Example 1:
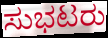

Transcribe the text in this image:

ಸುಭಟರು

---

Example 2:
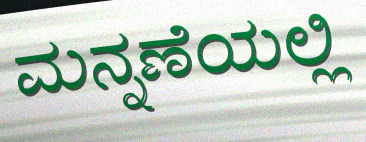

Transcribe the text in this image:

ಮನ್ನಣೆಯಲ್ಲಿ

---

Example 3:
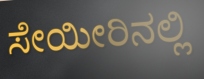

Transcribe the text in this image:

ಸೇಯೀರಿನಲ್ಲಿ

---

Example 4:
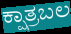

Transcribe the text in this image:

ಕ್ಷಾತ್ರಬಲ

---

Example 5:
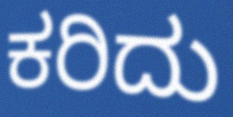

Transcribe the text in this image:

ಕರಿದು